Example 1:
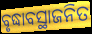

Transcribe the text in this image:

ବୃଦ୍ଧାବସ୍ଥାଜନିତ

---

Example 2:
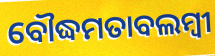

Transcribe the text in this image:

ବୌଦ୍ଧମତାବଲମ୍ବୀ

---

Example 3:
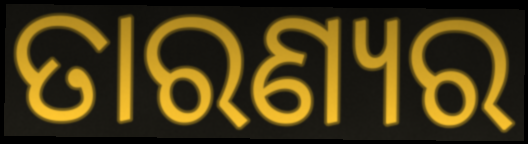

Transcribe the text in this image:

ତାରଣ୍ୟର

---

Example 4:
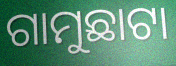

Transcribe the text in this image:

ଗାମୁଛାଟା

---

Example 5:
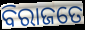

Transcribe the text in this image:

ବିରାଜତେ